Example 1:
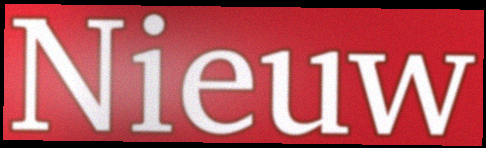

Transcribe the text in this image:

Nieuw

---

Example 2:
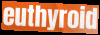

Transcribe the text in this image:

euthyroid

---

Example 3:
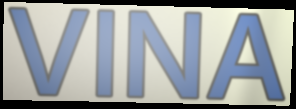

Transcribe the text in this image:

VINA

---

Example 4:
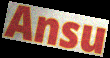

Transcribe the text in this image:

Ansu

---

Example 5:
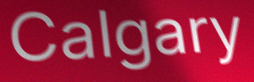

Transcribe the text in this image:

Calgary